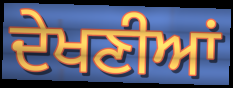
ਦੇਖਣੀਆਂ